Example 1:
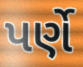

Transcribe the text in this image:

પર્ણે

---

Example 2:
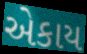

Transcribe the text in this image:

એકાય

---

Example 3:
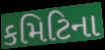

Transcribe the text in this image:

કમિટિના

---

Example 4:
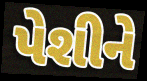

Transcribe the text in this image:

પેશીને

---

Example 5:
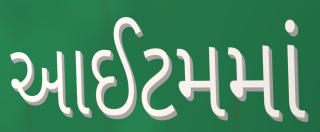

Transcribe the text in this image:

આઈટમમાં